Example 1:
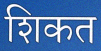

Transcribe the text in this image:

शिकत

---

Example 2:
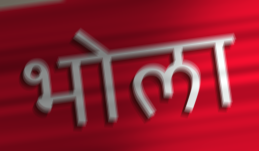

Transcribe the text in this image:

भोला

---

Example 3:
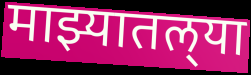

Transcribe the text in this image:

माझ्यातल्या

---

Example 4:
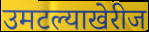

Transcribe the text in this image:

उमटल्याखेरीज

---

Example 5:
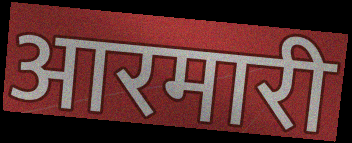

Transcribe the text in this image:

आरमारी